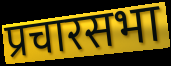
प्रचारसभा